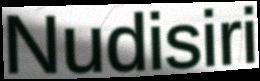
Nudisiri